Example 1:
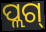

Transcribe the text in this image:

ପ୍ଲଗ୍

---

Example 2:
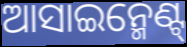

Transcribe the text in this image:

ଆସାଇନ୍ମେଣ୍ଟ୍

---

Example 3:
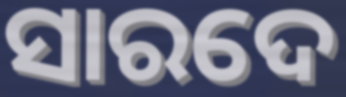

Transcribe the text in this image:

ସାରଦେ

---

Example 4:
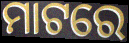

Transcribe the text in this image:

ମାଟରେ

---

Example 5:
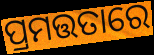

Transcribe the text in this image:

ପ୍ରମତ୍ତତାରେ